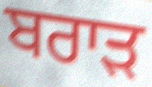
ਬਰਾੜ